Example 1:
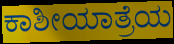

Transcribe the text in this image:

ಕಾಶೀಯಾತ್ರೆಯ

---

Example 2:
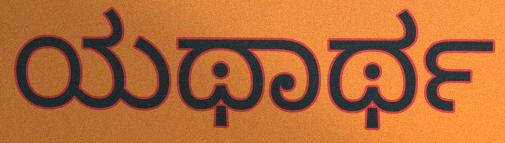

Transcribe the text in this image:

ಯಥಾರ್ಥ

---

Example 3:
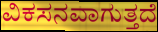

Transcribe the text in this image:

ವಿಕಸನವಾಗುತ್ತದೆ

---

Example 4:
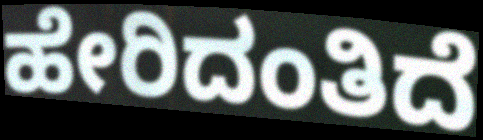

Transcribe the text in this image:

ಹೇರಿದಂತಿದೆ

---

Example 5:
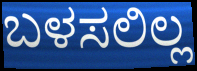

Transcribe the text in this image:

ಬಳಸಲಿಲ್ಲ